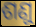
ଶଣୁ